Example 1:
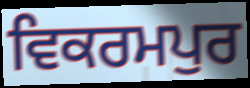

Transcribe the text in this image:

ਵਿਕਰਮਪੁਰ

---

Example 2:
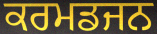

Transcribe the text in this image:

ਕਰਮਡਜਨ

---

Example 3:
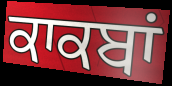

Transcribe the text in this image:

ਕਾਕਬਾਂ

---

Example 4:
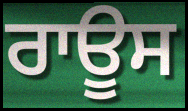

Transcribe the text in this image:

ਰਾਊਸ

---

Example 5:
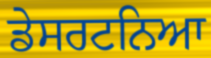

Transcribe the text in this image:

ਡੇਸਰਟਨਿਆ